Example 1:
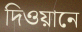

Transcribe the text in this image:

দিওয়ানে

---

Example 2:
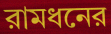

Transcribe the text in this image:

রামধনের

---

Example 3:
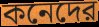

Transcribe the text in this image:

কনেদের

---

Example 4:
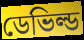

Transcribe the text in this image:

ডেভিল্ড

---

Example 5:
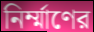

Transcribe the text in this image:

নির্ম্মাণের